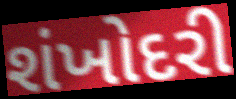
શંખોદરી